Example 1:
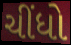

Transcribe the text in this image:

ચીંધો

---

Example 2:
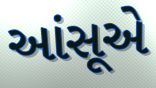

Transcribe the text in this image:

આંસૂએ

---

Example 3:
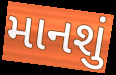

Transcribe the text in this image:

માનશું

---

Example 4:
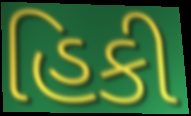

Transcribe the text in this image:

હિકી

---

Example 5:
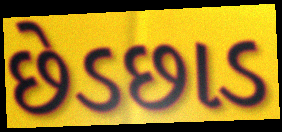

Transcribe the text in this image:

છેડછાડ